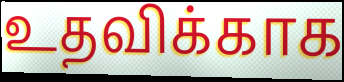
உதவிக்காக